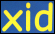
xid